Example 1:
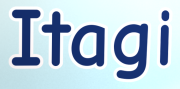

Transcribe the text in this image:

Itagi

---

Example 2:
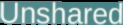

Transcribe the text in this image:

Unshared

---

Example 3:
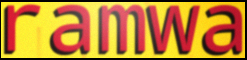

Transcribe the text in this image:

ramwa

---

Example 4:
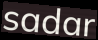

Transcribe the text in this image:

sadar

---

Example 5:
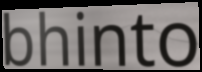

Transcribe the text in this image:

bhinto